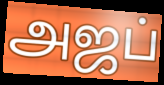
அஜப்